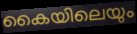
കൈയിലെയും